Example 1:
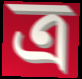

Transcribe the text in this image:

ত্র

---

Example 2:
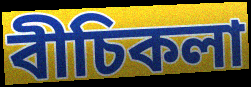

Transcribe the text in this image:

বীচিকলা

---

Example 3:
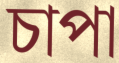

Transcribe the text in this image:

চাপা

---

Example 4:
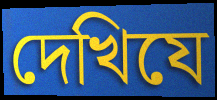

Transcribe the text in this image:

দেখিযে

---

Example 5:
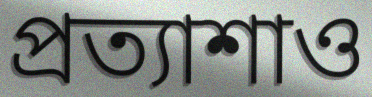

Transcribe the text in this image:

প্রত্যাশাও